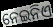
ନେଇନିଏ